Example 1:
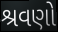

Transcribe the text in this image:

શ્રવણો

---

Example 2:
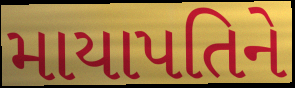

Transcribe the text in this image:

માયાપતિને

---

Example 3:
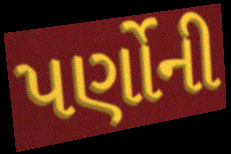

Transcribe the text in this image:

પર્ણોની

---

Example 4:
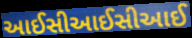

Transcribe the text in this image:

આઈસીઆઈસીઆઈ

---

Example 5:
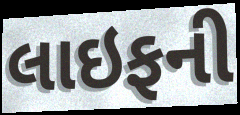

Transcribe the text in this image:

લાઇફની